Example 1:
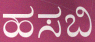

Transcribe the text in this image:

ಹಸಬಿ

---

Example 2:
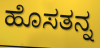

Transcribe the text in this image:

ಹೊಸತನ್ನ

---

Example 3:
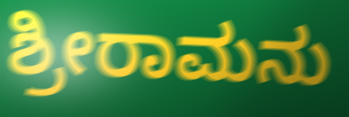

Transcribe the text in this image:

ಶ್ರೀರಾಮನು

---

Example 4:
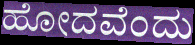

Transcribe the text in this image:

ಹೋದವೆಂದು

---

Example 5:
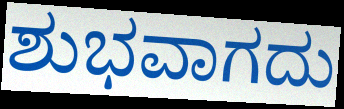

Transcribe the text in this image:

ಶುಭವಾಗದು